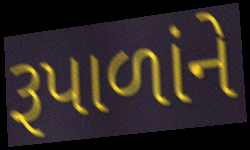
રૂપાળાંને